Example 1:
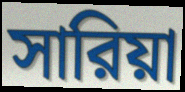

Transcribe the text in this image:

সারিয়া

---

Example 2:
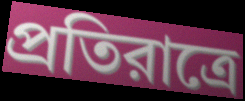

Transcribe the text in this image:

প্রতিরাত্রে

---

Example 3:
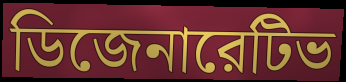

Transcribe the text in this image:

ডিজেনারেটিভ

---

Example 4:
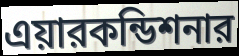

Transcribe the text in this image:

এয়ারকন্ডিশনার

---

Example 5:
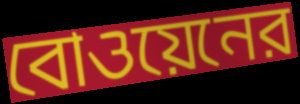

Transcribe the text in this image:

বোওয়েনের